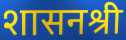
शासनश्री